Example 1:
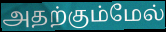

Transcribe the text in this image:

அதற்கும்மேல்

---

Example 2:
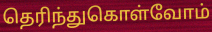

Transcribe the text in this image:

தெரிந்துகொள்வோம்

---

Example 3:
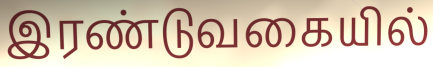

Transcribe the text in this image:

இரண்டுவகையில்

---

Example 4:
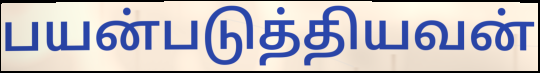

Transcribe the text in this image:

பயன்படுத்தியவன்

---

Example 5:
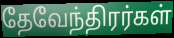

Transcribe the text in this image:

தேவேந்திரர்கள்